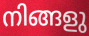
നിങ്ങളു